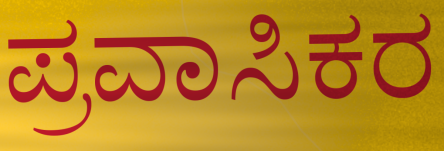
ಪ್ರವಾಸಿಕರ